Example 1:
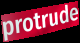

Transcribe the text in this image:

protrude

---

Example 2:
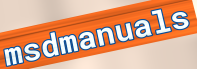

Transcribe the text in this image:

msdmanuals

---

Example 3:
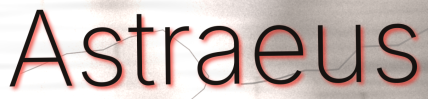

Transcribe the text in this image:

Astraeus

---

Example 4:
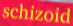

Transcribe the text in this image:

schizoid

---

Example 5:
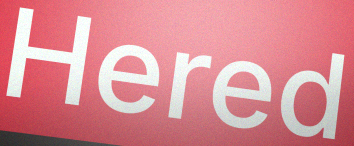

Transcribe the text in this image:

Hered